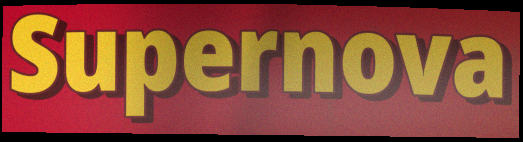
Supernova